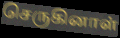
செருகினாள்